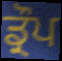
ਡ੍ਰੌਪ